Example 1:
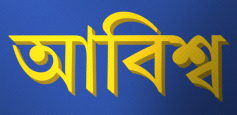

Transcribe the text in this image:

আবিশ্ব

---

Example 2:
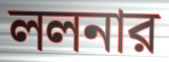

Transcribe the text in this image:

ললনার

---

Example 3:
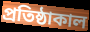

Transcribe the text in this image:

প্রতিষ্ঠাকাল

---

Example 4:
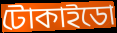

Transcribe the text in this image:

টোকাইডো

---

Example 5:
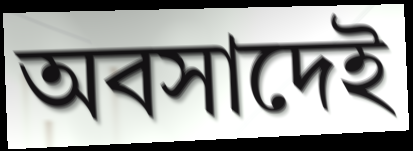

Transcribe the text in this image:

অবসাদেই